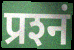
प्रश्‍नं